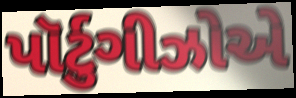
પૉર્ટુગીઝોએ